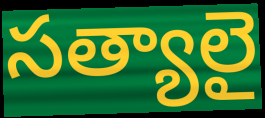
సత్యాలై